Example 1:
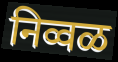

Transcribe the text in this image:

निव्वळ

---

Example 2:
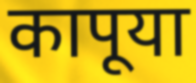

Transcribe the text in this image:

कापूया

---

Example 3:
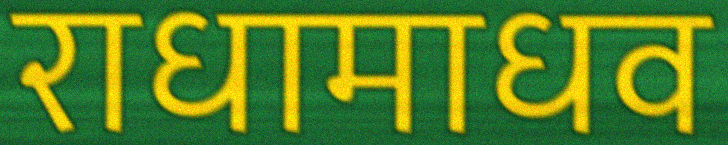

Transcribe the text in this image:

राधामाधव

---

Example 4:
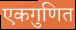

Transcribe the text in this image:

एकगुणित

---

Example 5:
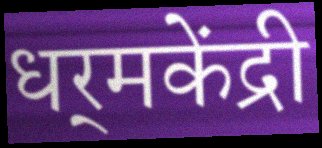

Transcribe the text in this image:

धर्मकेंद्री